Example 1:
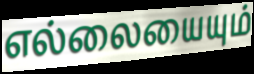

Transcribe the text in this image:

எல்லையையும்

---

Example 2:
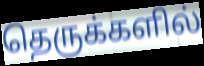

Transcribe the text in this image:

தெருக்களில்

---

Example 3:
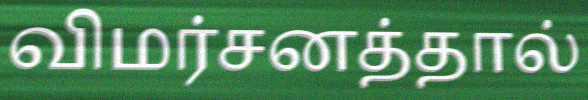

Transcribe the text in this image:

விமர்சனத்தால்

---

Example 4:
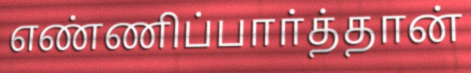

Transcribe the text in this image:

எண்ணிப்பார்த்தான்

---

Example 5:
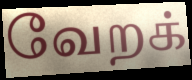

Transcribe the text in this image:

வேறக்